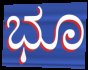
ಭೂ